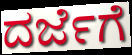
ದರ್ಜೆಗೆ